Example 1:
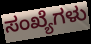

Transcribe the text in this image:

ಸಂಖ್ಯೆಗಳು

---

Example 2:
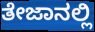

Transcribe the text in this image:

ತೇಜಾನಲ್ಲಿ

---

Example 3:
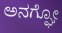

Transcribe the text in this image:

ಅನಗ್ಘೋ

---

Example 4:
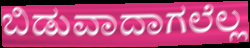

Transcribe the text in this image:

ಬಿಡುವಾದಾಗಲೆಲ್ಲ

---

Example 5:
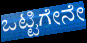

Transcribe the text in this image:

ಒಟ್ಟಿಗೇನೇ